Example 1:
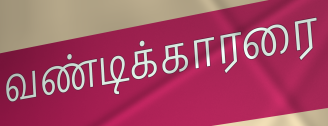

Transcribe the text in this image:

வண்டிக்காரரை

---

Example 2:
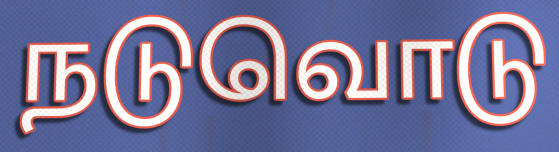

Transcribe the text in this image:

நடுவொடு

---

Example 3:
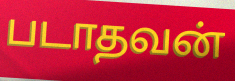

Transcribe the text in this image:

படாதவன்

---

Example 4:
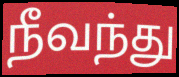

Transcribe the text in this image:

நீவந்து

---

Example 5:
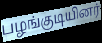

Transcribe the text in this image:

பழங்குடியினர்